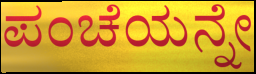
ಪಂಚೆಯನ್ನೇ